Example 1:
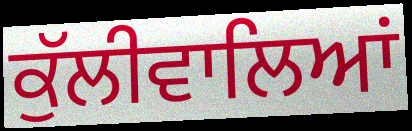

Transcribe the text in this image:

ਕੁੱਲੀਵਾਲਿਆਂ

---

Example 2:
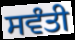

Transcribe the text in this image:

ਸਵੰਤੀ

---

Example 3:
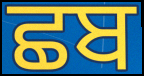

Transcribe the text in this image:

ਛਬ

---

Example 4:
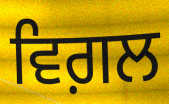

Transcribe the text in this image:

ਵਿਗ਼ਲ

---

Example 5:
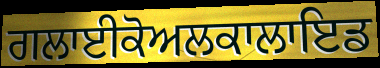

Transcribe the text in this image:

ਗਲਾਈਕੋਅਲਕਾਲਾਇਡ